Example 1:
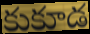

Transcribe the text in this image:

కుకూడ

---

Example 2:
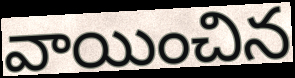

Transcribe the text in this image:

వాయించిన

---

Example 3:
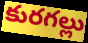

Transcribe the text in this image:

కురగల్లు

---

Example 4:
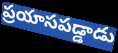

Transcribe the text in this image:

ప్రయాసపడ్డాడు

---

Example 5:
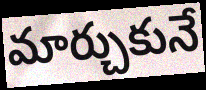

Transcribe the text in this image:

మార్చుకునే